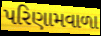
પરિણામવાળા